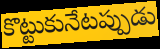
కొట్టుకునేటప్పుడు